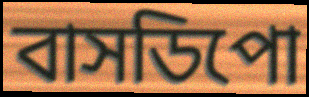
বাসডিপো